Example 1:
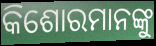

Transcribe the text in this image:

କିଶୋରମାନଙ୍କୁ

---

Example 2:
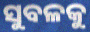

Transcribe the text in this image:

ସୁବଳକୁ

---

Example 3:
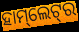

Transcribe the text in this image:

ହାମ୍‌ଲେଟ୍‌ର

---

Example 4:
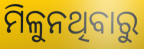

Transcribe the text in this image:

ମିଳୁନଥିବାରୁ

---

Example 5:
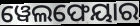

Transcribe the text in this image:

ୱେଲଫେୟାର